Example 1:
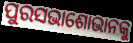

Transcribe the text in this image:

ପୁରସଭାଶୋଭାନକୁ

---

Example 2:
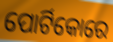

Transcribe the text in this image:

ପୋର୍ଟିକୋରେ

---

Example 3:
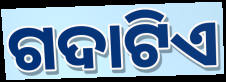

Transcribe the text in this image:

ଗଦାଟିଏ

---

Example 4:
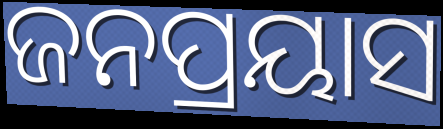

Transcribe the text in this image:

ଜନପ୍ରୟାସ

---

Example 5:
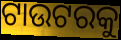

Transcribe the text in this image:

ଟାଉଟରକୁ